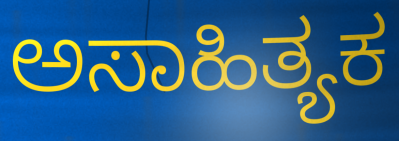
ಅಸಾಹಿತ್ಯಕ